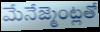
మేనేజ్మెంట్లతో